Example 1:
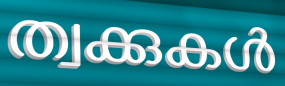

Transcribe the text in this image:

ത്വക്കുകൾ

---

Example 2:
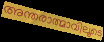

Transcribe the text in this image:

അന്തരാത്മാവിലൂടെ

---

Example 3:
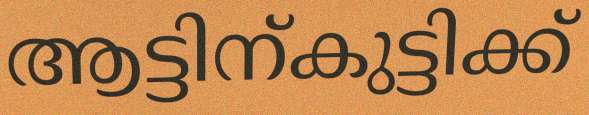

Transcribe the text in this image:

ആട്ടിന്കുട്ടിക്ക്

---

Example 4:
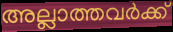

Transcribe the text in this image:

അല്ലാത്തവർക്ക്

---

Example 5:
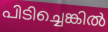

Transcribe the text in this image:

പിടിച്ചെങ്കിൽ